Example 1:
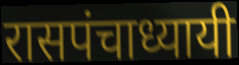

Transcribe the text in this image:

रासपंचाध्यायी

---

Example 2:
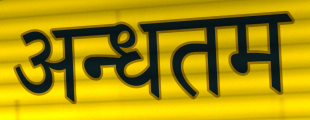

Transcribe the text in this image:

अन्धतम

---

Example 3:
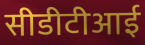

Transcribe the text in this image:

सीडीटीआई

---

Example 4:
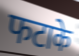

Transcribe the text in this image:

फटाके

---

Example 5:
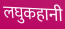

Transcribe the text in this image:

लघुकहानी